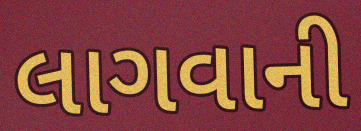
લાગવાની